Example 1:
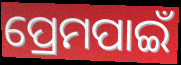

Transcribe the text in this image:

ପ୍ରେମପାଇଁ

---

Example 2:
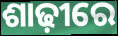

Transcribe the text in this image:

ଶାଢ଼ୀରେ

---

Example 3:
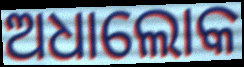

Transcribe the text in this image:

ଅଧାଲୋକ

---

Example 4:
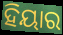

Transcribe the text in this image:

ହିୟାର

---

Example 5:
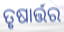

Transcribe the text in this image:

ତୃଷାର୍ତ୍ତର